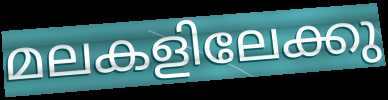
മലകളിലേക്കു